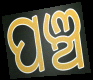
ପଞ୍ଚ